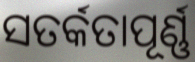
ସତର୍କତାପୂର୍ଣ୍ଣ